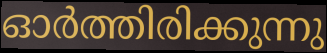
ഓർത്തിരിക്കുന്നു